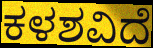
ಕಳಶವಿದೆ